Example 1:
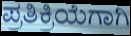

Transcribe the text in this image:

ಪ್ರತಿಕ್ರಿಯೆಗಾಗಿ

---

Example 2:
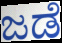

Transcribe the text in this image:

ಜಡೆ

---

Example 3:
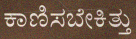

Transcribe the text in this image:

ಕಾಣಿಸಬೇಕಿತ್ತು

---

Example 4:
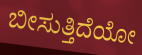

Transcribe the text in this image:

ಬೀಸುತ್ತಿದೆಯೋ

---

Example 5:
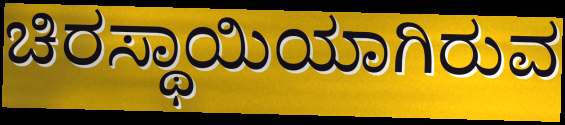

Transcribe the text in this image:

ಚಿರಸ್ಥಾಯಿಯಾಗಿರುವ